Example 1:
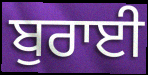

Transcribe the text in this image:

ਬੁਰਾਈ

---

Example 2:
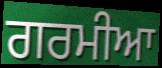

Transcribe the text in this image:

ਗਰਮੀਆ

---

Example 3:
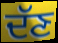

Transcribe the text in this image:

ਦੱਣ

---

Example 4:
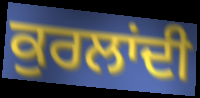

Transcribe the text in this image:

ਕੁਰਲਾਂਦੀ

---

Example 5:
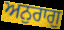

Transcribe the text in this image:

ਅਨੁਰਾਗੁ